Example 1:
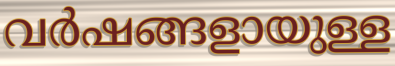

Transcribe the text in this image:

വർഷങ്ങളായുള്ള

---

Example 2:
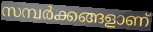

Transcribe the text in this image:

സമ്പർക്കങ്ങളാണ്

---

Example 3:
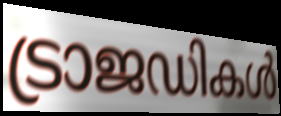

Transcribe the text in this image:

ട്രാജഡികൾ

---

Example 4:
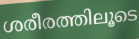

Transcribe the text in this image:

ശരീരത്തിലൂടെ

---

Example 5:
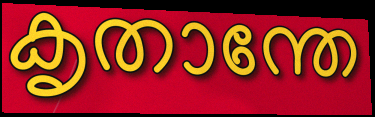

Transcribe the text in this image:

കൃതാന്തേ